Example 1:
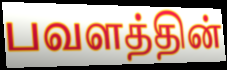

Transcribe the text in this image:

பவளத்தின்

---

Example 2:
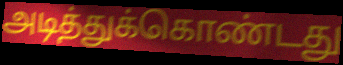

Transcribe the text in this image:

அடித்துக்கொண்டது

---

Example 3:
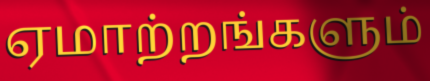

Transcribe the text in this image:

ஏமாற்றங்களும்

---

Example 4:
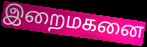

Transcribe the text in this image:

இறைமகனை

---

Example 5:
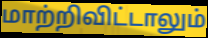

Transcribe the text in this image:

மாற்றிவிட்டாலும்